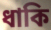
ধাকি